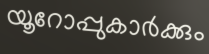
യൂറോപ്പുകാർക്കും